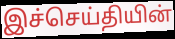
இச்செய்தியின்